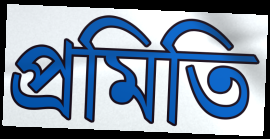
প্রমিতি